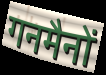
गनमैनों